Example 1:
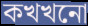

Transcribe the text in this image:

কখখনো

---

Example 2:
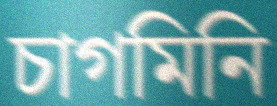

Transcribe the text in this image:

চাগমিনি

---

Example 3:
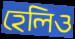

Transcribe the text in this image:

হেলিও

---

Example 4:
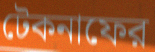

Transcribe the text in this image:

টেকনাফের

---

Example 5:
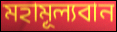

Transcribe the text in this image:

মহামূল্যবান